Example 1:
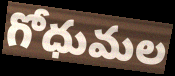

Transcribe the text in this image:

గోధుమల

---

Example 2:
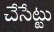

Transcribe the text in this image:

చేసేట్టు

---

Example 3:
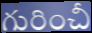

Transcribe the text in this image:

గురించీ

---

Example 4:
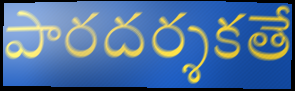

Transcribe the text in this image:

పారదర్శకతే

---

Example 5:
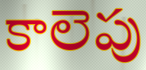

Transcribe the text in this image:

కాలెపు